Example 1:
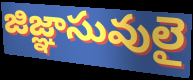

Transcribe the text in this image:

జిజ్ఞాసువులై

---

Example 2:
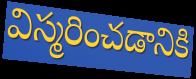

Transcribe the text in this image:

విస్మరించడానికి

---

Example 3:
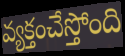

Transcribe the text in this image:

వ్యక్తంచేస్తోంది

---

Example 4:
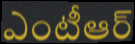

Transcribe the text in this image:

ఎంటీఆర్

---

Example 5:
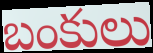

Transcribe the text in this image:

బంకులు